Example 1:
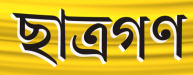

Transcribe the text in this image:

ছাত্রগণ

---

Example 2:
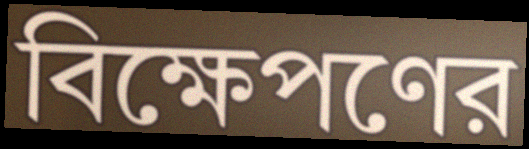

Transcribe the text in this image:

বিক্ষেপণের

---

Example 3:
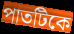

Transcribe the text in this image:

পাতটিকে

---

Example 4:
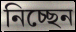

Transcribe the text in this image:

নিচ্ছেন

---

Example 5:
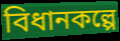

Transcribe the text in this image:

বিধানকল্পে